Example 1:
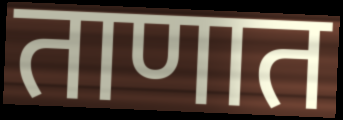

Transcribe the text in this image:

ताणात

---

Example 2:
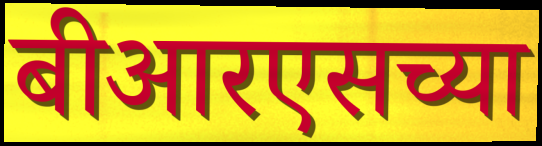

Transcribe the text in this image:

बीआरएसच्या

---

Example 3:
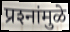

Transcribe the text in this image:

प्रश्‍नांमुळे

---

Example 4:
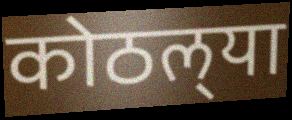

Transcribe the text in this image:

कोठल्या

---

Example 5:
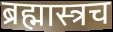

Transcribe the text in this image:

ब्रह्मास्त्रच